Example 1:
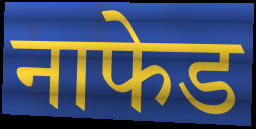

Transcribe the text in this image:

नाफेड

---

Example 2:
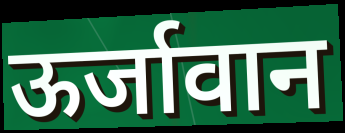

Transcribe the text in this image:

ऊर्जावान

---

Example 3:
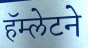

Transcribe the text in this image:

हॅम्लेटने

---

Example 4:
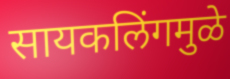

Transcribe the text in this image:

सायकलिंगमुळे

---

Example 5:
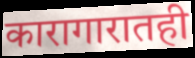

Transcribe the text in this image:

कारागारातही